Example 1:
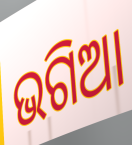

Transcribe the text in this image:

ଭଗିଆ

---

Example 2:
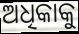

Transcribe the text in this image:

ଅଧିକାକୁ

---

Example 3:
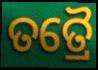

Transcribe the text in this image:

ତତ୍ରୈ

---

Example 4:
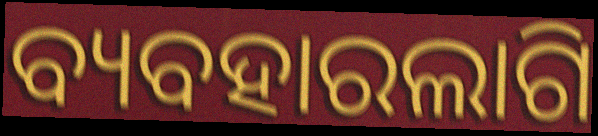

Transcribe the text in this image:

ବ୍ୟବହାରଲାଗି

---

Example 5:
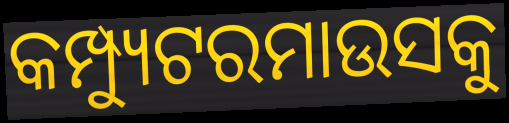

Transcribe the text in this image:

କମ୍ପ୍ୟୁଟରମାଉସକୁ